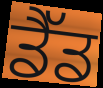
ਡੈੱਡ